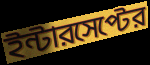
ইন্টারসেপ্টের